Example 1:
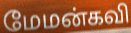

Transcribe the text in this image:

மேமன்கவி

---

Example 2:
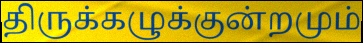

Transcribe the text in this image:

திருக்கழுக்குன்றமும்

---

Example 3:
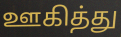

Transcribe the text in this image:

ஊகித்து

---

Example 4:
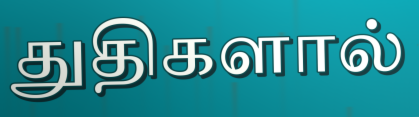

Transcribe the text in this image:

துதிகளால்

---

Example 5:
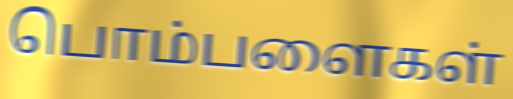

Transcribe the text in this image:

பொம்பளைகள்